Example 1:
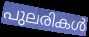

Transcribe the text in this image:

പുലരികൾ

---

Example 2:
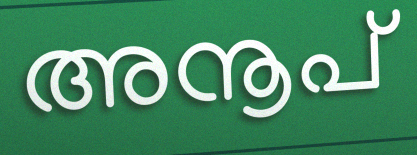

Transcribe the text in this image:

അനൂപ്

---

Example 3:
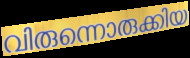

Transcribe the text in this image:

വിരുന്നൊരുക്കിയ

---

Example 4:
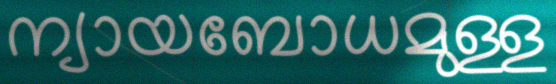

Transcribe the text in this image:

ന്യായബോധമുള്ള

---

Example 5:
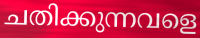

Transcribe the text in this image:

ചതിക്കുന്നവളെ